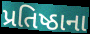
પ્રતિષ્ઠાના